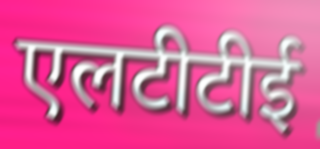
एलटीटीई